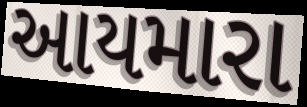
આયમારા